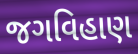
જગવિહાણ